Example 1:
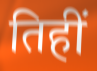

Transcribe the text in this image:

तिहीं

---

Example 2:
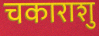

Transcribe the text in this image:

चकाराशु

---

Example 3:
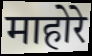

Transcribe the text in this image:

माहोरे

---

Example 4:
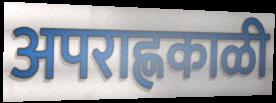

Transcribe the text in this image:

अपराह्णकाळी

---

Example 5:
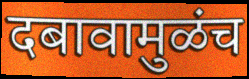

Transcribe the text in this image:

दबावामुळंच